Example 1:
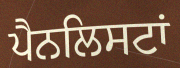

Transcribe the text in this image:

ਪੈਨਲਿਸਟਾਂ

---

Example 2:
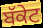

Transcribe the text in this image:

ਬੱਕੇਟ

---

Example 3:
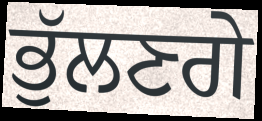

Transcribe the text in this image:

ਭੁੱਲਣਗੇ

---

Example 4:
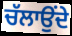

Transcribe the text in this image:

ਚੱਲਾਉਂਦੇ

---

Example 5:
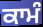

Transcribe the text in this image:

ਕਾਮੰ